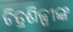
ଚିତ୍ରଶିଳ୍ପୀଙ୍କ